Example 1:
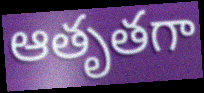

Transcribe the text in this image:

ఆతృతగా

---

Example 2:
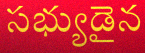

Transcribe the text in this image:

సభ్యుడైన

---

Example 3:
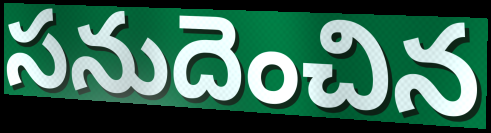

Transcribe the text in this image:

సనుదెంచిన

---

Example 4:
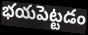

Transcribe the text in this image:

భయపెట్టడం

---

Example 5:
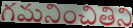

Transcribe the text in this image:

గమనించితిని